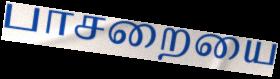
பாசறையை